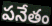
పనేతం